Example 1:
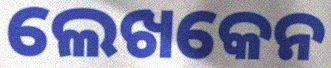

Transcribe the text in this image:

ଲେଖକେନ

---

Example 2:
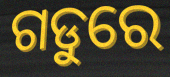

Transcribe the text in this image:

ଗଡୁରେ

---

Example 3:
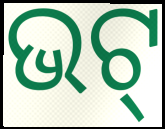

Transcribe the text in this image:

ଭଟ୍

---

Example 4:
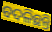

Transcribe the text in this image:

ବଦଳିଛନ୍ତି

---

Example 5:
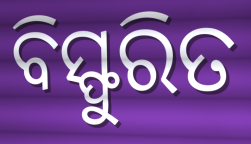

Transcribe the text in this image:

ବିସ୍ଫୁରିତ